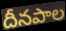
దీనపాల